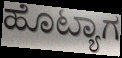
ಹೊಟ್ಯಾಗ